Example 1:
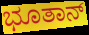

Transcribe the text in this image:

ಭೂತಾನ್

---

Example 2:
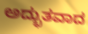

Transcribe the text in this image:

ಅದ್ಭುತವಾದ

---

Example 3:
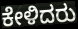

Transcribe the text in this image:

ಕೇಳಿದರು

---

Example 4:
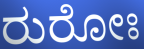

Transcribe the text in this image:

ರುರೋಃ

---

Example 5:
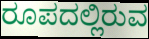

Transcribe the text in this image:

ರೂಪದಲ್ಲಿರುವ